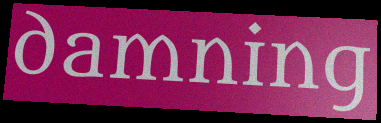
damning